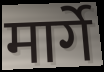
मार्गे